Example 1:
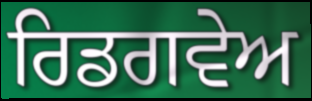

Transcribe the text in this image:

ਰਿਡਗਵੇਅ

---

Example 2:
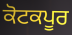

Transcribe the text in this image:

ਕੋਟਕਪੂਰ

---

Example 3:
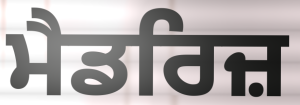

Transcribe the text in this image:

ਮੈਡਰਿਜ਼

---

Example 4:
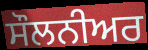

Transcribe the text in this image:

ਸੌਲਨੀਅਰ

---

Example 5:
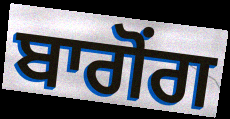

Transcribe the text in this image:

ਬਾਗੋਂਗ